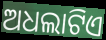
ଅଧଲାଟିଏ